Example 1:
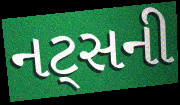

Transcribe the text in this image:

નટ્સની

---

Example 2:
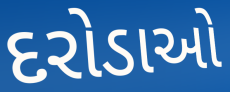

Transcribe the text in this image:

દરોડાઓ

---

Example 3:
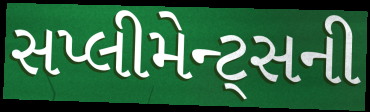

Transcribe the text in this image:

સપ્લીમેન્ટ્સની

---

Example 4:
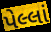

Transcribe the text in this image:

પેલ્લાં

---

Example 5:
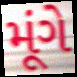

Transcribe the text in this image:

મૂંગે